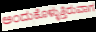
ಅಂದುಕೊಳ್ಳುತ್ತಿರುವಾಗ